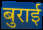
बुराई